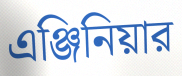
এঞ্জিনিয়ার